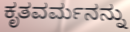
ಕೃತವರ್ಮನನ್ನು